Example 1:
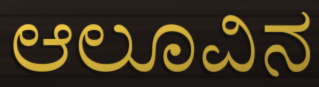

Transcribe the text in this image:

ಆಲೂವಿನ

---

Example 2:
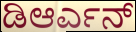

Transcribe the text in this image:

ಡಿಆರ್ಎನ್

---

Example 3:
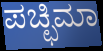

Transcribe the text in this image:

ಪಚ್ಛಿಮಾ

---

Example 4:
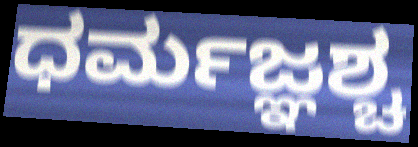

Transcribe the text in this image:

ಧರ್ಮಜ್ಞಶ್ಚ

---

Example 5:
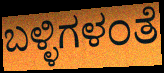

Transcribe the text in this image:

ಬಳ್ಳಿಗಳಂತೆ